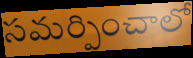
సమర్పించాలో